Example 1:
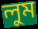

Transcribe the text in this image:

লুম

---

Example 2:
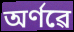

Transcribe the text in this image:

অৰ্ণৱে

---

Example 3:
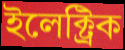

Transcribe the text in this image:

ইলেক্ট্ৰিক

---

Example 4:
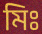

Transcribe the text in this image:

মিঃ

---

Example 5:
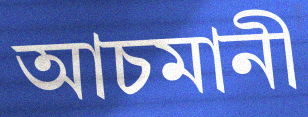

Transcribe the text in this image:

আচমানী